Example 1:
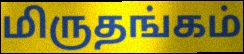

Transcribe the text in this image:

மிருதங்கம்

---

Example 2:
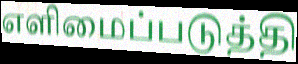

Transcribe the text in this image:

எளிமைப்படுத்தி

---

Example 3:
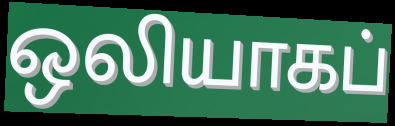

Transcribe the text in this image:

ஒலியாகப்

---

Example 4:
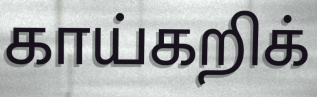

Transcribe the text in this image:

காய்கறிக்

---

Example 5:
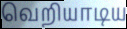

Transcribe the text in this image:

வெறியாடிய